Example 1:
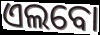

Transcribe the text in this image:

ଏଲବୋ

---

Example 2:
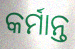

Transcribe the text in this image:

କର୍ମାନ୍ତ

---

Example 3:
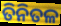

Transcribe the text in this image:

ତିନିତଳ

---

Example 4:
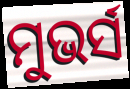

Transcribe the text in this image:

ମୁଭର୍ସ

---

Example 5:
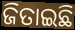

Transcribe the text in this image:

ଜିତାଇଛି